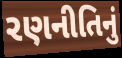
રણનીતિનું